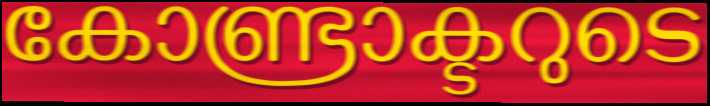
കോണ്ട്രാക്ടറുടെ